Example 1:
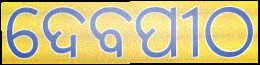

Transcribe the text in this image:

ଦେବପୀଠ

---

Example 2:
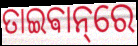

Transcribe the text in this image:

ତାଇଵାନ୍‌ରେ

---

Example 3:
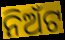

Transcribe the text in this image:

ନିଅଁଟ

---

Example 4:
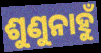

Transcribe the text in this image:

ଶୁଣୁନାହୁଁ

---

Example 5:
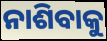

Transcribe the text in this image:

ନାଶିବାକୁ